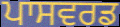
ਪਾਸਵਰਡ